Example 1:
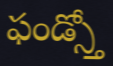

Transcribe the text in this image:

ఫండ్స్తో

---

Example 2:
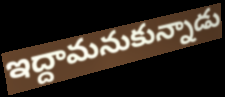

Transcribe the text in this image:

ఇద్దామనుకున్నాడు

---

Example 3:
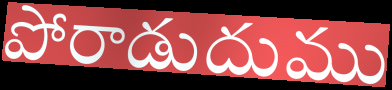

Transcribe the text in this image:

పోరాడుదుము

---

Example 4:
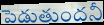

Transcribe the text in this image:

పెడుతుందనీ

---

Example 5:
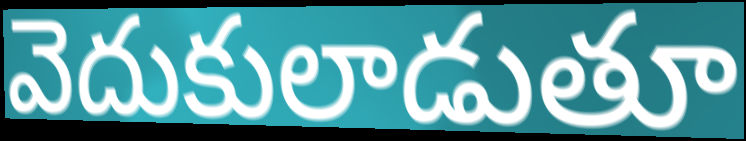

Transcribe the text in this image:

వెదుకులాడుతూ